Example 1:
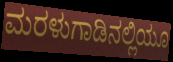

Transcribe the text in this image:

ಮರಳುಗಾಡಿನಲ್ಲಿಯೂ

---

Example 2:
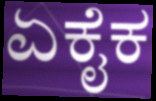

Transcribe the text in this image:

ಏಕೈಕ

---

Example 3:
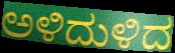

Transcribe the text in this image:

ಅಳಿದುಳಿದ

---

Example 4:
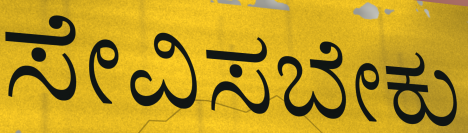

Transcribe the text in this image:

ಸೇವಿಸಬೇಕು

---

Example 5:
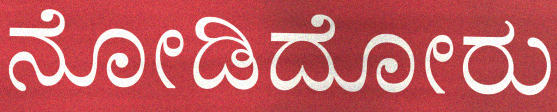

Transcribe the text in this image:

ನೋಡಿದೋರು